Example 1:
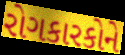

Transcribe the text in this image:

રોગકારકોને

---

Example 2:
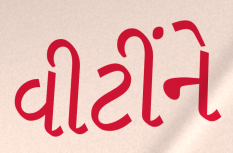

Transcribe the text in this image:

વીટીંને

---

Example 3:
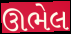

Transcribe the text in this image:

ઊભેલ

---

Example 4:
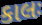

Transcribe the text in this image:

કાલઃ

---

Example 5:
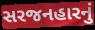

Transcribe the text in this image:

સરજનહારનું